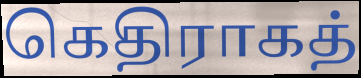
கெதிராகத்